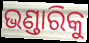
ଭଣ୍ଡାରିକୁ